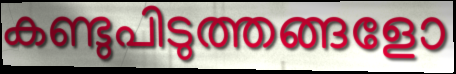
കണ്ടുപിടുത്തങ്ങളോ